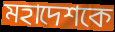
মহাদেশকে